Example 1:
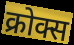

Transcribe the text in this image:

क्रोक्स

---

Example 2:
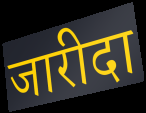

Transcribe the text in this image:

जारीदा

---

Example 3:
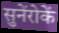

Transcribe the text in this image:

सुनेंरोकें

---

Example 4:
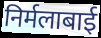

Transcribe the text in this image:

निर्मलाबाई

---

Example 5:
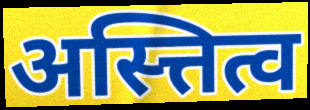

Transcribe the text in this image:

अस्त्तित्व